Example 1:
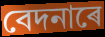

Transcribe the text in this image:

বেদনাৰে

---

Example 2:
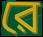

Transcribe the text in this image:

ৱে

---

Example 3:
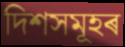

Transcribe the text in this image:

দিশসমূহৰ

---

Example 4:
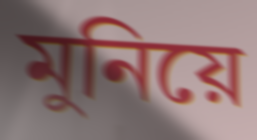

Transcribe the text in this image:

মুনিয়ে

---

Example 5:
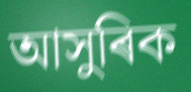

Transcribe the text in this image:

আসুৰিক